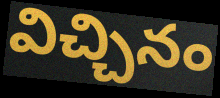
విచ్చినం